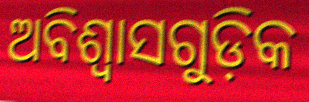
ଅବିଶ୍ଵାସଗୁଡ଼ିକ